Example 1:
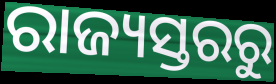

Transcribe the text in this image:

ରାଜ୍ୟସ୍ତରରୁ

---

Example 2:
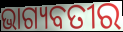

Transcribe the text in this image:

ଭାଗ୍ୟବତୀର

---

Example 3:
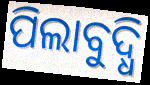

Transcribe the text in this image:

ପିଲାବୁଦ୍ଧି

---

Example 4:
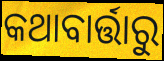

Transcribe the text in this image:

କଥାବାର୍ତ୍ତାରୁ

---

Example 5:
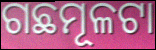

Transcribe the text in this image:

ଗଛମୂଳଟା